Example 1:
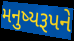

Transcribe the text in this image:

મનુષ્યરૂપને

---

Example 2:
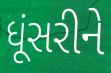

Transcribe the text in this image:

ધૂંસરીને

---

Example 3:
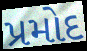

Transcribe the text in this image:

પ્રમોદ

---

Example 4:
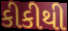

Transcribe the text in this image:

કીકીથી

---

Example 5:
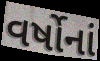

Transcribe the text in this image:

વર્ષોનાં